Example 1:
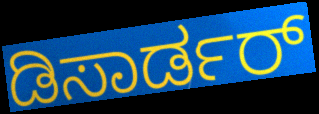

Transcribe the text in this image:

ಡಿಸಾರ್ಡರ್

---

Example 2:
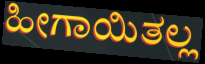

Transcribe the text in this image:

ಹೀಗಾಯಿತಲ್ಲ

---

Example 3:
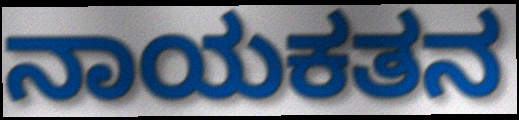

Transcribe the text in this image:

ನಾಯಕತನ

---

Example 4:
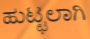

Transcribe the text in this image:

ಹುಟ್ಟಲಾಗಿ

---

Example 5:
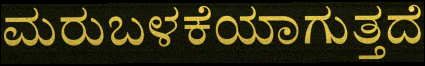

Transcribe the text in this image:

ಮರುಬಳಕೆಯಾಗುತ್ತದೆ